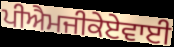
ਪੀਐਮਜੀਕੇਏਵਾਈ